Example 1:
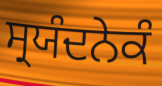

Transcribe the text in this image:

ਸ੍ਰਯੰਦਨੇਕੰ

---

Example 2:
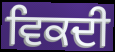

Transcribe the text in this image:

ਵਿਕਦੀ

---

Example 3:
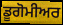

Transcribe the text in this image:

ਡੂਗੋਮੀਅਰ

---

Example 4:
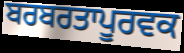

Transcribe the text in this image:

ਬਰਬਰਤਾਪੂਰਵਕ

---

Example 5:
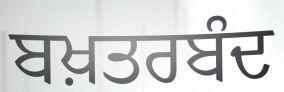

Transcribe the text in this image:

ਬਖ਼ਤਰਬੰਦ